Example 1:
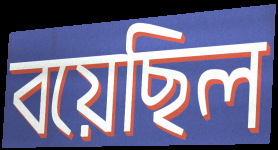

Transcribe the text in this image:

বয়েছিল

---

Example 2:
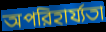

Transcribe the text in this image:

অপরিহার্য্যতা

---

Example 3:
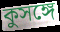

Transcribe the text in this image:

কুসঙ্গে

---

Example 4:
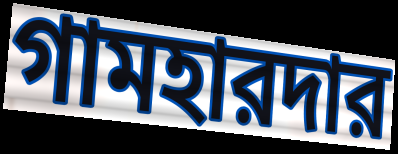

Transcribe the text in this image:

গামহারদার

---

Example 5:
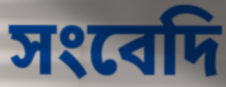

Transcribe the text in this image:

সংবেদি